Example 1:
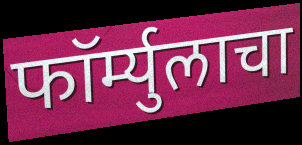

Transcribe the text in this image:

फॉर्म्युलाचा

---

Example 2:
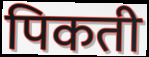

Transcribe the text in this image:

पिकती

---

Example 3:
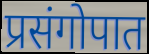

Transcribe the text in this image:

प्रसंगोपात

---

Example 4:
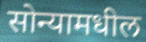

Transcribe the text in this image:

सोन्यामधील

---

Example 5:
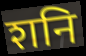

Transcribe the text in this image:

शनि